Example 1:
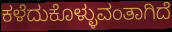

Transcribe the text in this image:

ಕಳೆದುಕೊಳ್ಳುವಂತಾಗಿದೆ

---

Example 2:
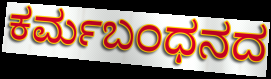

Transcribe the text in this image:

ಕರ್ಮಬಂಧನದ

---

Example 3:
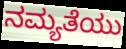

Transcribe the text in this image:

ನಮ್ಯತೆಯು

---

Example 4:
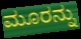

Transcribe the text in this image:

ಮೂರನ್ನು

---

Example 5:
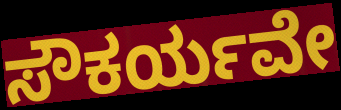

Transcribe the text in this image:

ಸೌಕರ್ಯವೇ